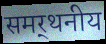
समर्थनीय